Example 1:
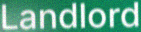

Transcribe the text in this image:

Landlord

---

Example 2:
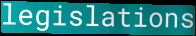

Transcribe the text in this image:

legislations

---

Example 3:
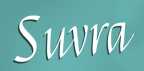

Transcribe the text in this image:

Suvra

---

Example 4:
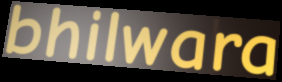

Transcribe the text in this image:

bhilwara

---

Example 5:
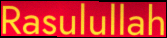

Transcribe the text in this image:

Rasulullah